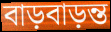
বাড়বাড়ন্ত